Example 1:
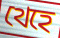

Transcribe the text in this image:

থেহে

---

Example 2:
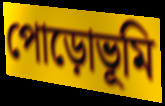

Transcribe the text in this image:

পোড়োভূমি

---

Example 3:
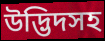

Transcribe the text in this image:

উদ্ভিদসহ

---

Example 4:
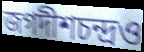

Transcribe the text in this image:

জগদীশচন্দ্রও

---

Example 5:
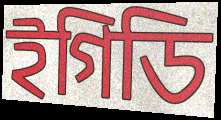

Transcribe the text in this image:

ইগিডি